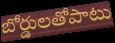
బోర్డులతోపాటు